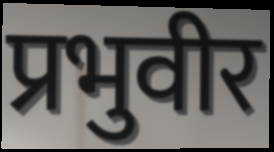
प्रभुवीर